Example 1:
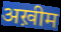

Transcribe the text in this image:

अख़ीम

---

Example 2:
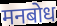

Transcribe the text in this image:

मनबोध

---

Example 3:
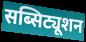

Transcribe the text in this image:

सब्सिट्यूशन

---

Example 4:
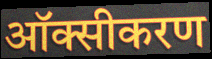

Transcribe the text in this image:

ऑक्सीकरण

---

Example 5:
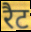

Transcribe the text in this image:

रैट